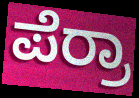
ಪೆರ್ರಾ